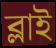
ব্লাই